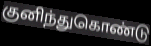
குனிந்துகொண்டு